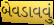
બેવડાવવું